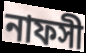
নাফসী